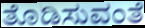
ತೊಡಿಸುವಂತೆ